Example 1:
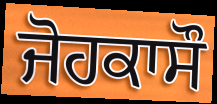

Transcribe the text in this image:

ਜੋਹਕਾਸੌ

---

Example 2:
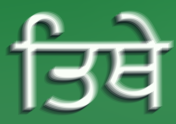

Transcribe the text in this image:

ਤਿਥੇ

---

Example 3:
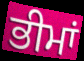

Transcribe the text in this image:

ਭੀਮਾਂ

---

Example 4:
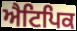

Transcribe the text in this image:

ਐਟਿਪਿਕ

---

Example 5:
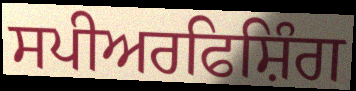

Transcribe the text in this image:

ਸਪੀਅਰਫਿਸ਼ਿੰਗ